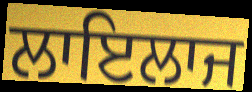
ਲਾਇਲਾਜ